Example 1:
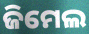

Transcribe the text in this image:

ଜିମେଲ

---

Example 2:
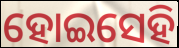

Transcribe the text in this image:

ହୋଇସେହି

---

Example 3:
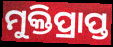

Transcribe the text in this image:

ମୁକ୍ତିପ୍ରାପ୍ତ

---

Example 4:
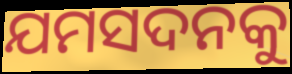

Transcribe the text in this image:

ଯମସଦନକୁ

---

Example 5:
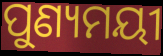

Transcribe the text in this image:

ପୁଣ୍ୟମୟୀ